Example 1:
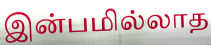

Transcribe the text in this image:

இன்பமில்லாத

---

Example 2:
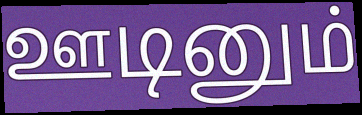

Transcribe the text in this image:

ஊடினும்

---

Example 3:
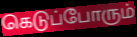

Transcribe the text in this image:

கெடுப்போரும்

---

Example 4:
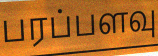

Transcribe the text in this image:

பரப்பளவு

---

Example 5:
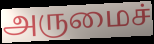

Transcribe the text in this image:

அருமைச்